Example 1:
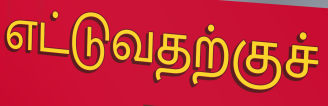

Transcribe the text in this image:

எட்டுவதற்குச்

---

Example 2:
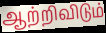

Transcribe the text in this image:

ஆற்றிவிடும்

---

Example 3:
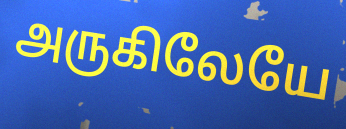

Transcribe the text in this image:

அருகிலேயே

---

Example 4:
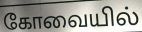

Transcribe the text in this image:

கோவையில்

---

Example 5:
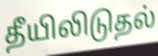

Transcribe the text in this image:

தீயிலிடுதல்